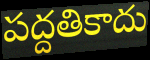
పద్దతికాదు